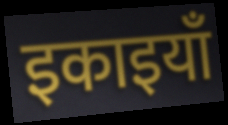
इकाइयाँ